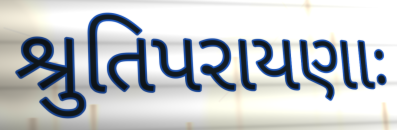
શ્રુતિપરાયણાઃ